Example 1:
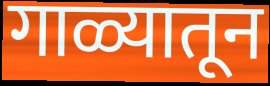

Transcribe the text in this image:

गाळ्यातून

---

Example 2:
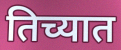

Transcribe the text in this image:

तिच्यात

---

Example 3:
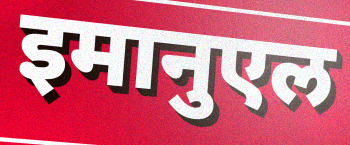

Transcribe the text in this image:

इमानुएल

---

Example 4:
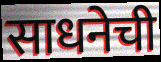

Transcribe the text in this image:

साधनेची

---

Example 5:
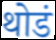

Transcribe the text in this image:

थोडं